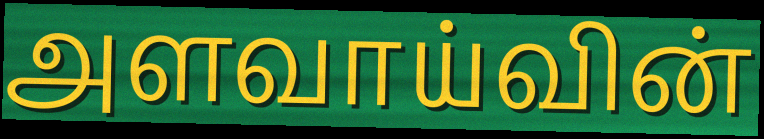
அளவாய்வின்